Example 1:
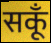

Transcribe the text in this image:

सकूँ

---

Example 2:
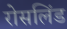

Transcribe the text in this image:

रोसलिंड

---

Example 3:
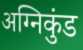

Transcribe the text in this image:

अग्निकुंड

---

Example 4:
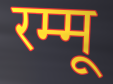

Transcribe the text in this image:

रम्मू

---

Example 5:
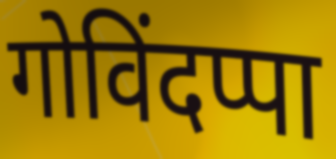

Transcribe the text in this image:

गोविंदप्पा